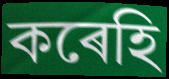
কৰেহি